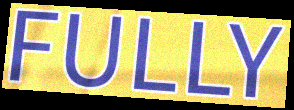
FULLY